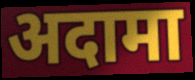
अदामा